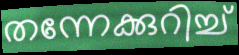
തന്നേക്കുറിച്ച്